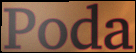
Poda